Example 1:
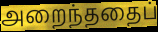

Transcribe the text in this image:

அறைந்ததைப்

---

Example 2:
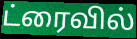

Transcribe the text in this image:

ட்ரைவில்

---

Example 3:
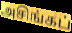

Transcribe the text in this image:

அசிங்கப்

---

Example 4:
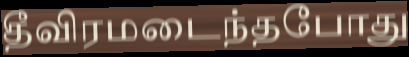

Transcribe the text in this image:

தீவிரமடைந்தபோது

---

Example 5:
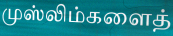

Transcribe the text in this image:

முஸ்லிம்களைத்